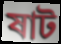
ষাট